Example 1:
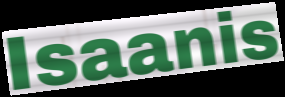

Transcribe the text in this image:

Isaanis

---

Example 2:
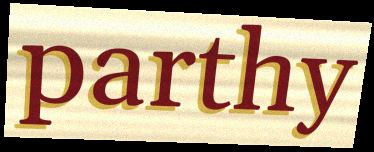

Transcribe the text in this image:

parthy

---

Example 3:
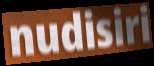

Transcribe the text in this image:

nudisiri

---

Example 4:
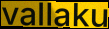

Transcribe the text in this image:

vallaku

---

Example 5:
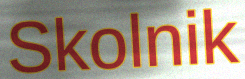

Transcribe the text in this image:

Skolnik